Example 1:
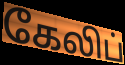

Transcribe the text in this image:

கேலிப்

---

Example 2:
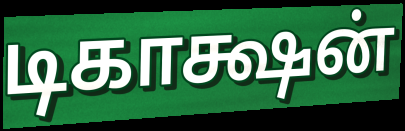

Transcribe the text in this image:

டிகாக்ஷன்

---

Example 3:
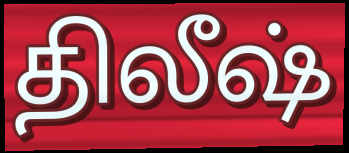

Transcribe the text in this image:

திலீஷ்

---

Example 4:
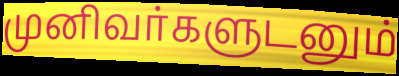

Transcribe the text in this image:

முனிவர்களுடனும்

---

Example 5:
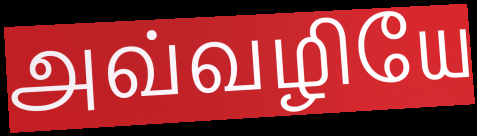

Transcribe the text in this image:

அவ்வழியே